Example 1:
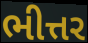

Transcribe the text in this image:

ભીત્તર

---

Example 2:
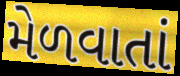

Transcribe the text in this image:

મેળવાતાં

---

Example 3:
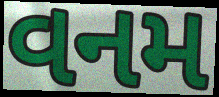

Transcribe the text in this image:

વનમ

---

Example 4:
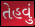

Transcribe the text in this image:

તેહવું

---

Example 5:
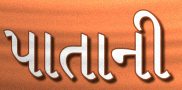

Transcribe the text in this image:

પાતાની